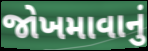
જોખમાવાનું